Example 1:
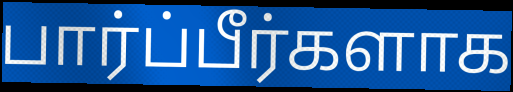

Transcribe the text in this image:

பார்ப்பீர்களாக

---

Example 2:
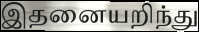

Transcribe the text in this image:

இதனையறிந்து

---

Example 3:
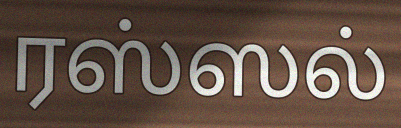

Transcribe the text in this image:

ரஸ்ஸல்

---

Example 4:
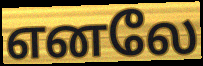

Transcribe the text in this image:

எனலே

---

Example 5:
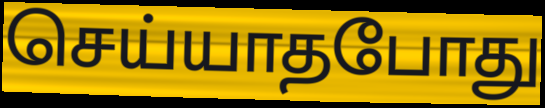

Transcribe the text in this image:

செய்யாதபோது